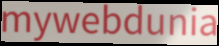
mywebdunia